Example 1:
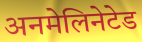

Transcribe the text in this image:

अनमेलिनेटेड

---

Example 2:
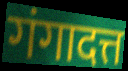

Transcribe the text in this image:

गंगादत्त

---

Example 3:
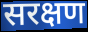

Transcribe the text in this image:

सरक्षण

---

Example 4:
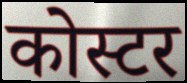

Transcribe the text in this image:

कोस्टर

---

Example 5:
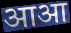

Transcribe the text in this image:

आआ